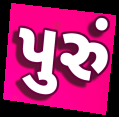
પુરું